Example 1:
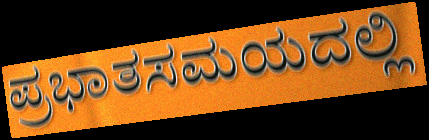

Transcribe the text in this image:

ಪ್ರಭಾತಸಮಯದಲ್ಲಿ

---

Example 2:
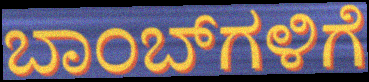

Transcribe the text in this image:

ಬಾಂಬ್‌ಗಳಿಗೆ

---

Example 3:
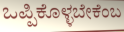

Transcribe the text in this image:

ಒಪ್ಪಿಕೊಳ್ಳಬೇಕೆಂಬ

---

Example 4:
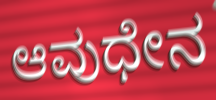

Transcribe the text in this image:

ಆವುಧೇನ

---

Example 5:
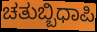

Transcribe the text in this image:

ಚತುಬ್ಬಿಧಾಪಿ